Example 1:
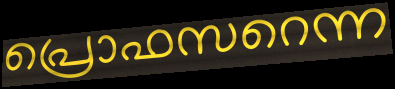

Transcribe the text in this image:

പ്രൊഫസറെന്ന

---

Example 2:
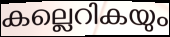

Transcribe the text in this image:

കല്ലെറികയും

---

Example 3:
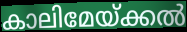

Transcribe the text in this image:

കാലിമേയ്ക്കൽ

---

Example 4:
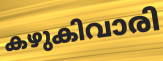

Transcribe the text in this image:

കഴുകിവാരി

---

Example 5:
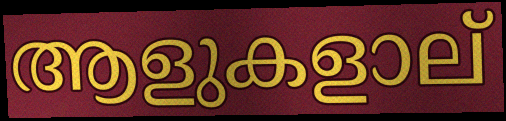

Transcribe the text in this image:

ആളുകളാല്